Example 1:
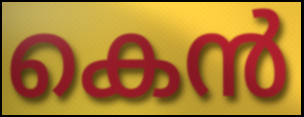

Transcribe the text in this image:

കെൻ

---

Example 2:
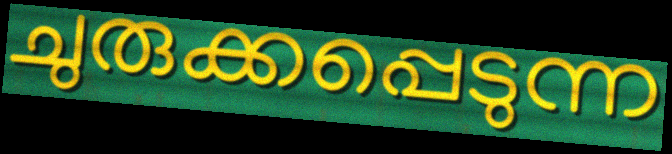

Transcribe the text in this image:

ചുരുക്കപ്പെടുന്ന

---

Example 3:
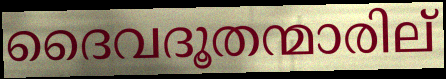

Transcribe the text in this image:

ദൈവദൂതന്മാരില്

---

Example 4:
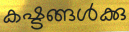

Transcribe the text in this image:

കഷ്ടങ്ങൾക്കു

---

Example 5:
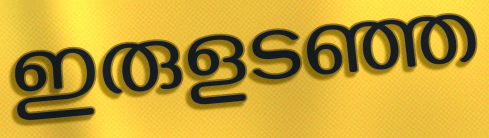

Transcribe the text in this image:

ഇരുളടഞ്ഞ